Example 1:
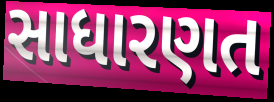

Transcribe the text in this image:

સાધારણત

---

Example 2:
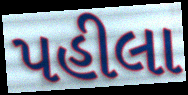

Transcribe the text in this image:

પહીલા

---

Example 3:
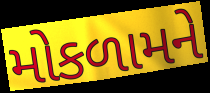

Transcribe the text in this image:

મોકળામને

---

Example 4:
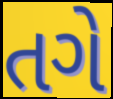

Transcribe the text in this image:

તગે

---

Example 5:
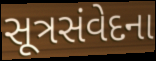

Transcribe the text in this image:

સૂત્રસંવેદના